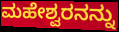
ಮಹೇಶ್ವರನನ್ನು